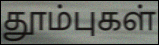
தூம்புகள்